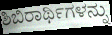
ಶಿಬಿರಾರ್ಥಿಗಳನ್ನು